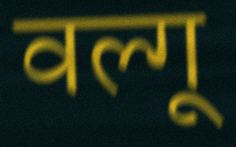
वल्गू